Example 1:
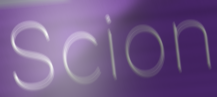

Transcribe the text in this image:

Scion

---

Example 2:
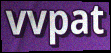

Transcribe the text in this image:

vvpat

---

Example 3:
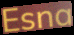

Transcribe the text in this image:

Esna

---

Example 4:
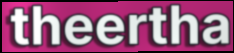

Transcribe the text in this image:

theertha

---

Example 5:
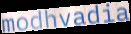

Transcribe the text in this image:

modhvadia